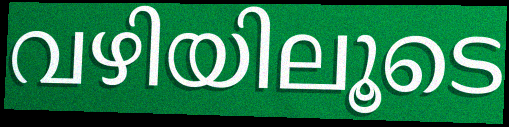
വഴിയിലൂടെ